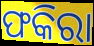
ଫକିରା